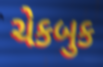
ચેકબુક